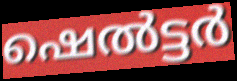
ഷെൽട്ടർ